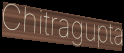
Chitragupta